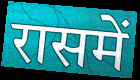
रासमें